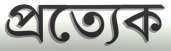
প্রত্যেক